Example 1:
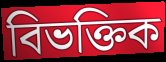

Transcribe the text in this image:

বিভক্তিক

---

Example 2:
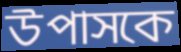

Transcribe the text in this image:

উপাসকে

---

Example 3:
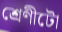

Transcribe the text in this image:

শ্ৰেণীটো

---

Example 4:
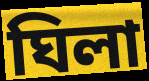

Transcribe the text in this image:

ঘিলা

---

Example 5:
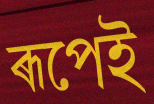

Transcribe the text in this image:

ৰূপেই